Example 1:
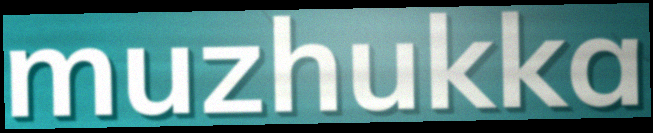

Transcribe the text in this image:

muzhukka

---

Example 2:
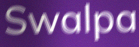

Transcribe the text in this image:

Swalpa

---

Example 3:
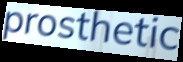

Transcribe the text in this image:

prosthetic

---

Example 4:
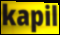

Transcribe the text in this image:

kapil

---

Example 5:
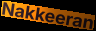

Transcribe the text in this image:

Nakkeeran